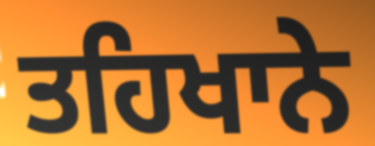
ਤਹਿਖਾਨੇ